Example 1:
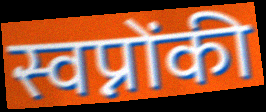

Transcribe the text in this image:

स्वप्नोंकी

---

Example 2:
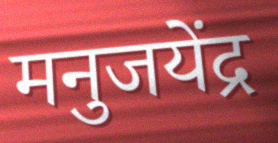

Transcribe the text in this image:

मनुजयेंद्र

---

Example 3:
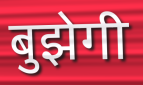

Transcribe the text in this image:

बुझेगी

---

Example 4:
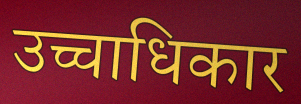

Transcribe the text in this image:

उच्चाधिकार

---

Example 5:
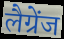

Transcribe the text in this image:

लैग्रेंज